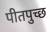
पीतपुच्छ